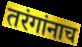
तरंगांनाच